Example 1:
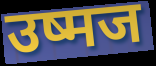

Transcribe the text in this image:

उष्मज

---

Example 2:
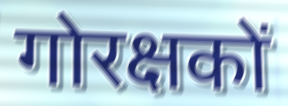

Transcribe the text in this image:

गोरक्षकों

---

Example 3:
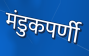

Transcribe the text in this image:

मंडुकपर्णी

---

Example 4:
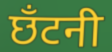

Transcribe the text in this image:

छँटनी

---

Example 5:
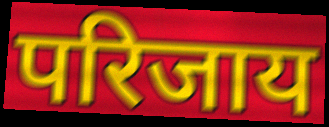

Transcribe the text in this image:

परिजाय